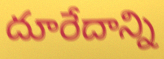
దూరేదాన్ని